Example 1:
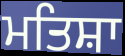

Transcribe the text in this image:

ਮਤਿਸ਼ਾ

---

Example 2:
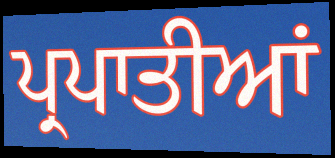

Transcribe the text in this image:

ਪ੍ਰਪਾਤੀਆਂ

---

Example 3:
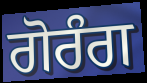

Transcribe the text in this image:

ਗੋਰੰਗ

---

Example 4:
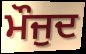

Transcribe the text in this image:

ਮੌਜੁਦ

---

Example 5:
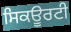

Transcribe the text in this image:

ਸਿਕਊਰਟੀ